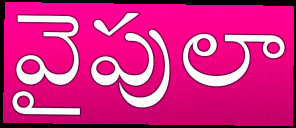
వైపులా